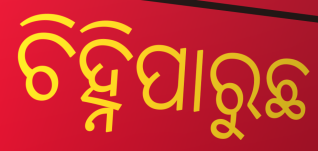
ଚିହ୍ନିପାରୁଛ